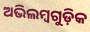
ଅଭିଲମ୍ବଗୁଡ଼ିକ